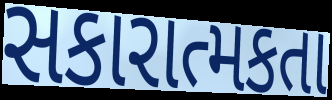
સકારાત્મકતા